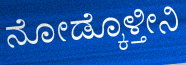
ನೋಡ್ಕೊಳ್ತೀನಿ